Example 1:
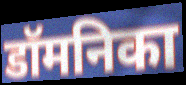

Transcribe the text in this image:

डॉमनिका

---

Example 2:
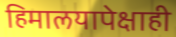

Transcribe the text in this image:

हिमालयापेक्षाही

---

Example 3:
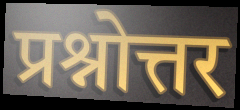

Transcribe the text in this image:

प्रश्नोत्तर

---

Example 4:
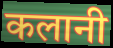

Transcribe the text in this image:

कलानी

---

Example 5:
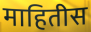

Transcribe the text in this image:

माहितीस